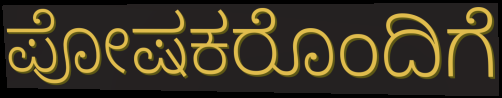
ಪೋಷಕರೊಂದಿಗೆ